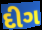
દીગ